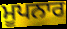
ਮੂਪਨਾਰ